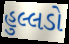
હુલ્લડો